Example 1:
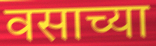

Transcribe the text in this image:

वसाच्या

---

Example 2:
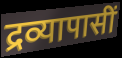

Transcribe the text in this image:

द्रव्यापासीं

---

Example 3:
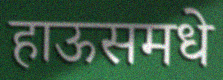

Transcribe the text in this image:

हाऊसमधे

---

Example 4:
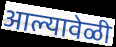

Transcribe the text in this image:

आल्यावेळी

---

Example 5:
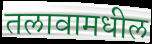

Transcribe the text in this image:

तलावामधील